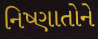
નિષ્ણાતોને